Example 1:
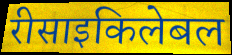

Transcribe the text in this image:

रीसाइकिलेबल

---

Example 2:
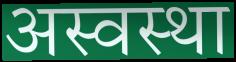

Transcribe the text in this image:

अस्वस्था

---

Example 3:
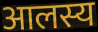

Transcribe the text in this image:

आलस्‍य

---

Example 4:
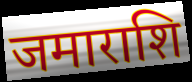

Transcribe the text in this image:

जमाराशि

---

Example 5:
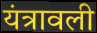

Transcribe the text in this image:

यंत्रावली